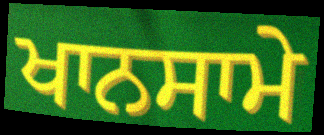
ਖਾਨਸਾਮੇ